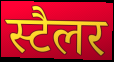
स्टैलर